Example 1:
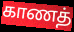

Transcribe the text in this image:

காணத்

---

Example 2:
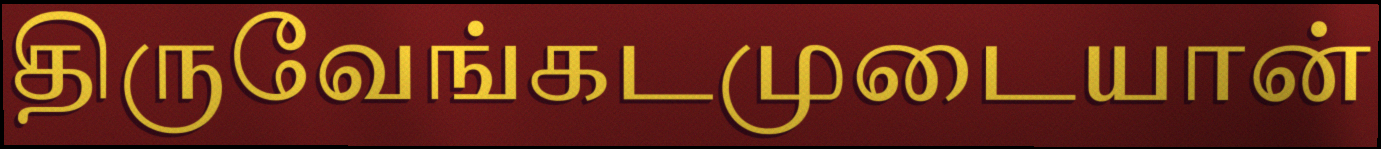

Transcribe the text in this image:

திருவேங்கடமுடையான்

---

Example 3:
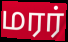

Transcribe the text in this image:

மரர்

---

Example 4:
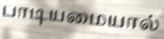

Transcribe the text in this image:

பாடியமையால்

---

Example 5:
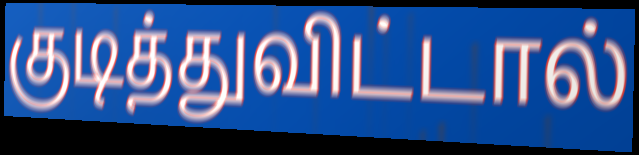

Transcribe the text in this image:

குடித்துவிட்டால்